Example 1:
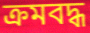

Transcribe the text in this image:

ক্ৰমবদ্ধ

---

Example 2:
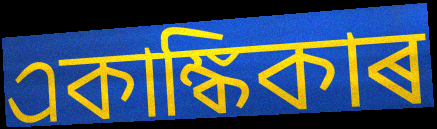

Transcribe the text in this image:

একাঙ্কিকাৰ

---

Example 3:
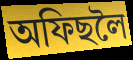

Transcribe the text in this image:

অফিছলৈ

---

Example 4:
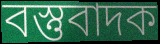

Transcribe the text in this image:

বস্তুবাদক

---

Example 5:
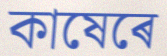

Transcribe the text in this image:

কাষেৰে